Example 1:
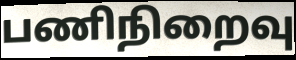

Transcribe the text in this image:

பணிநிறைவு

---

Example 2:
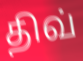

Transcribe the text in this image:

திவ்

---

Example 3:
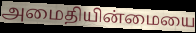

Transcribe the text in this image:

அமைதியின்மையை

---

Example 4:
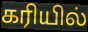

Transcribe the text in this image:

கரியில்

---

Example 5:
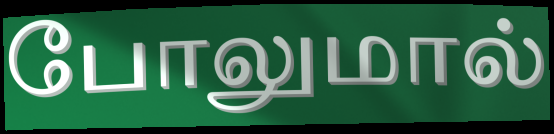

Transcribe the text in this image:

போலுமால்